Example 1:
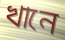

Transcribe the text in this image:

খানে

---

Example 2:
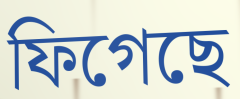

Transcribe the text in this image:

ফিগেছে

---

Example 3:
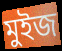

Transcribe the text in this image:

মুইজ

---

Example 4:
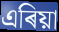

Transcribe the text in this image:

এৰিয়া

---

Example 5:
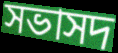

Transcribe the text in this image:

সভাসদ